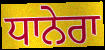
ਧਾਨੇਰਾ